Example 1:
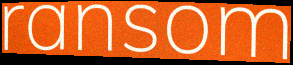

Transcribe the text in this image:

ransom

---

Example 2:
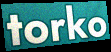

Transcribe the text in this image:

torko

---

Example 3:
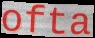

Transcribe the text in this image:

ofta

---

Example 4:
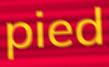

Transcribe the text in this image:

pied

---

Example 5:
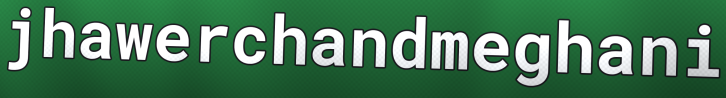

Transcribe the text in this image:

jhawerchandmeghani